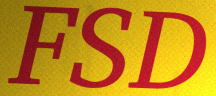
FSD